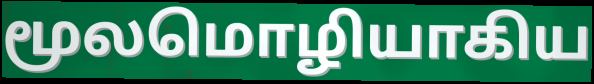
மூலமொழியாகிய